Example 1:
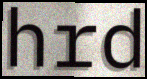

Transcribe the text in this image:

hrd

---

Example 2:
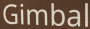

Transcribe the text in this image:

Gimbal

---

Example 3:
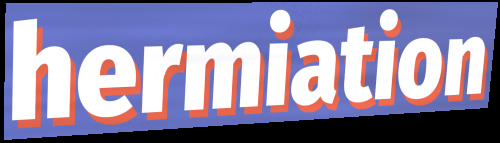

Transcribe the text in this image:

hermiation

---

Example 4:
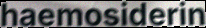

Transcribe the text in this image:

haemosiderin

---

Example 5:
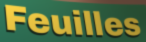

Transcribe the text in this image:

Feuilles